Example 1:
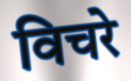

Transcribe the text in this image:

विचरे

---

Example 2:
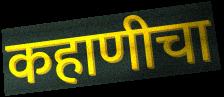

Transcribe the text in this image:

कहाणीचा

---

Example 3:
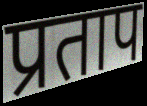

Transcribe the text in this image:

प्रताप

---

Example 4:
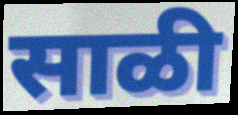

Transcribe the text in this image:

साळी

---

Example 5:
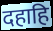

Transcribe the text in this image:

दहाहि